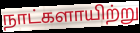
நாட்களாயிற்று